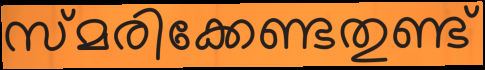
സ്മരിക്കേണ്ടതുണ്ട്